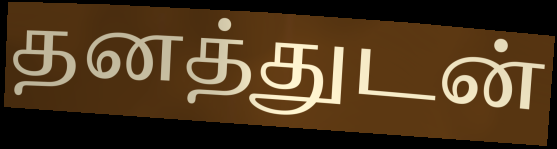
தனத்துடன்